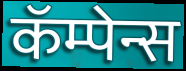
कॅम्पेन्स